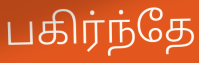
பகிர்ந்தே